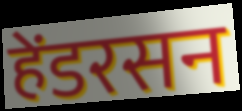
हेंडरसन